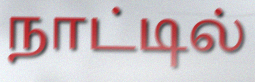
நாட்டில்